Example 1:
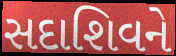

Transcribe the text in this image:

સદાશિવને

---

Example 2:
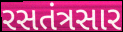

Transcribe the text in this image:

રસતંત્રસાર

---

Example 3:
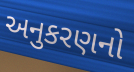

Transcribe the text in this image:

અનુકરણનો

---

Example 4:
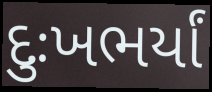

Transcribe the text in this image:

દુઃખભર્યાં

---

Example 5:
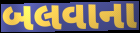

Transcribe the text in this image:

બલવાના